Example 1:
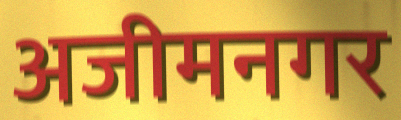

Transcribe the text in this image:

अजीमनगर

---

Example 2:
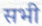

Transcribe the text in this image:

सभी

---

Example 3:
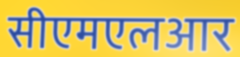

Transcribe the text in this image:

सीएमएलआर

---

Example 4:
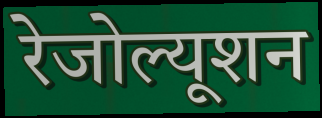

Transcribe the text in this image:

रेजोल्यूशन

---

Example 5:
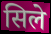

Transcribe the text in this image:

सिले